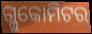
ଗ୍ଲୁକୋମିଟର